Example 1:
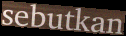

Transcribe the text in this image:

sebutkan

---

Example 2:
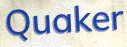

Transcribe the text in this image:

Quaker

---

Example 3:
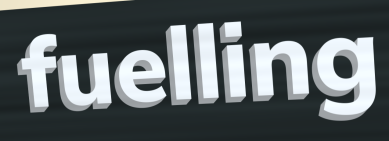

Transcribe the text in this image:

fuelling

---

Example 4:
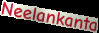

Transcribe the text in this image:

Neelankanta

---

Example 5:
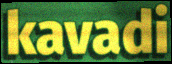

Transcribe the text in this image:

kavadi